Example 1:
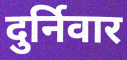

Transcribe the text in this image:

दुर्निवार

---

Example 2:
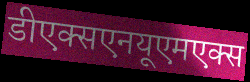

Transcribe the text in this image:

डीएक्सएनयूएमएक्स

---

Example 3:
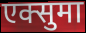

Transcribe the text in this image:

एक्सुमा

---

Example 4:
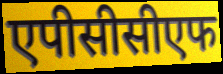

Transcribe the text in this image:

एपीसीसीएफ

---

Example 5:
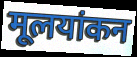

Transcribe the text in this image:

मूलयांकन